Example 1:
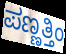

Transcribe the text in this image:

ಪಣ್ಣತ್ತಿಂ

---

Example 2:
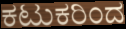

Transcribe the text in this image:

ಕಟುಕರಿಂದ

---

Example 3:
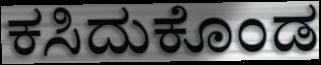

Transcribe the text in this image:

ಕಸಿದುಕೊಂಡ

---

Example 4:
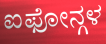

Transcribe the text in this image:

ಐಫೋನ್ಗಳ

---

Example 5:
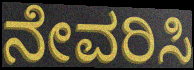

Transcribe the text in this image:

ನೇವರಿಸಿ